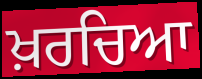
ਖ਼ਰਚਿਆ